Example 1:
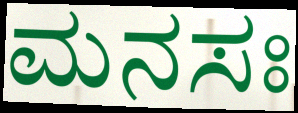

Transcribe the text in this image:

ಮನಸಃ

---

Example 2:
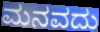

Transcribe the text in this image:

ಮನವದು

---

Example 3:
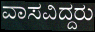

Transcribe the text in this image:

ವಾಸವಿದ್ದರು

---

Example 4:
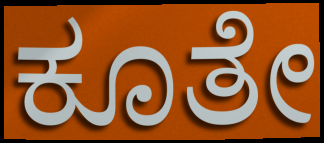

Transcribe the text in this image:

ಕೂತೇ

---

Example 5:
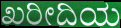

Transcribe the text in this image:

ಖರೀದಿಯ